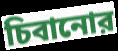
চিবানোর